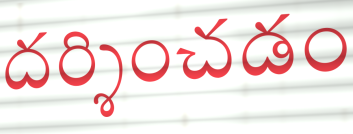
దర్శించడం